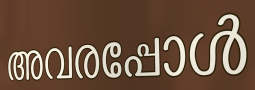
അവരപ്പോൾ